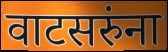
वाटसरुंना